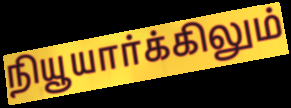
நியூயார்க்கிலும்